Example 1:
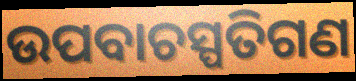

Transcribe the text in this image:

ଉପବାଚସ୍ପତିଗଣ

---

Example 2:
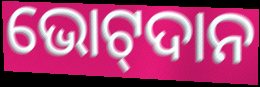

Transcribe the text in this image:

ଭୋଟ୍‌ଦାନ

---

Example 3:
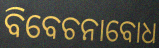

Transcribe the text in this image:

ବିବେଚନାବୋଧ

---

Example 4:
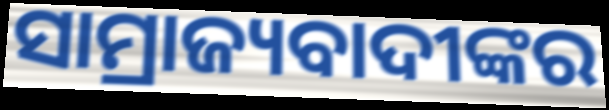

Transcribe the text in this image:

ସାମ୍ରାଜ୍ୟବାଦୀଙ୍କର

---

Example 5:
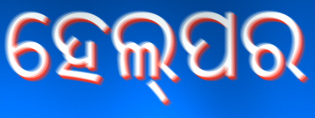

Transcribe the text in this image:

ହେଲ୍‌ପର